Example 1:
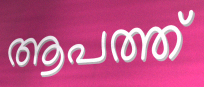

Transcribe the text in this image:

ആപത്ത്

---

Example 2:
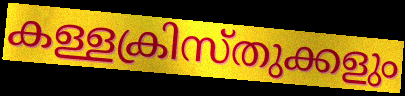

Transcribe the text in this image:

കള്ളക്രിസ്തുക്കളും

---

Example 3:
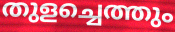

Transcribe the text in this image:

തുളച്ചെത്തും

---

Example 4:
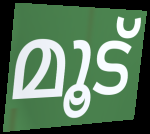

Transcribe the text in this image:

മൂട്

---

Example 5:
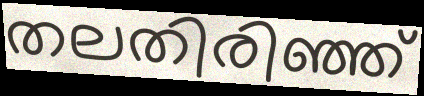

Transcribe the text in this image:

തലതിരിഞ്ഞ്